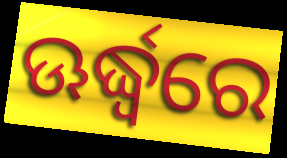
ଊର୍ଦ୍ଧ୍ୱରେ